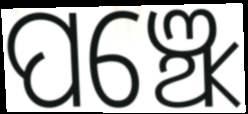
ପଞ୍ଝେ